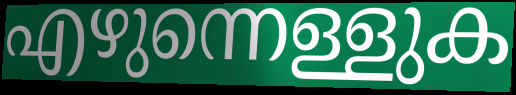
എഴുന്നെള്ളുക